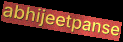
abhijeetpanse